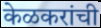
केळकरांची